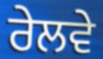
ਰੇਲਵੇ